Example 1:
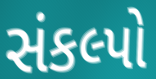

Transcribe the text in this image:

સંકલ્પો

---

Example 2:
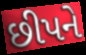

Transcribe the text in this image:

છીપને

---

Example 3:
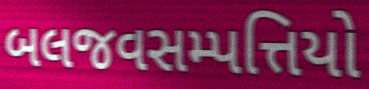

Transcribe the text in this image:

બલજવસમ્પત્તિયો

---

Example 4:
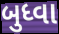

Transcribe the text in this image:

બુધ્વા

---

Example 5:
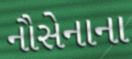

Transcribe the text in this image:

નૌસેનાના